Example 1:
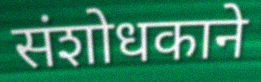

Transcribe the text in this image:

संशोधकाने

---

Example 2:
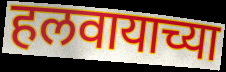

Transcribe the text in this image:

हलवायाच्या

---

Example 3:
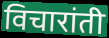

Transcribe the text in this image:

विचारांती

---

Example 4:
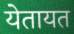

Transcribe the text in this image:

येतायत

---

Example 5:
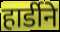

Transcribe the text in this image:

हार्डीने